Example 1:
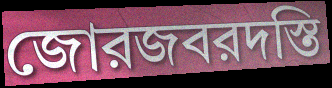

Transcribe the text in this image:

জোরজবরদস্তি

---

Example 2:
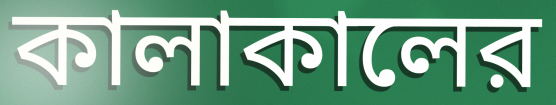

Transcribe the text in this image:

কালাকালের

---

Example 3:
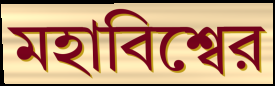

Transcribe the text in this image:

মহাবিশ্বের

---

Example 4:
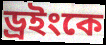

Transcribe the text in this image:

ড্রইংকে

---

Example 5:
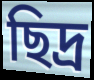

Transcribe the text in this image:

ছিদ্র